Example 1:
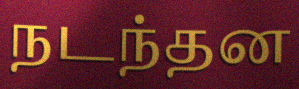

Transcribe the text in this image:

நடந்தன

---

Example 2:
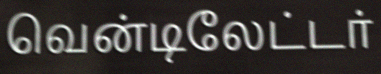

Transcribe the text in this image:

வென்டிலேட்டர்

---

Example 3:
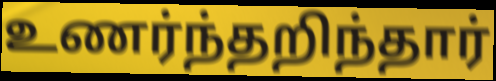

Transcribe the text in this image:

உணர்ந்தறிந்தார்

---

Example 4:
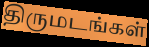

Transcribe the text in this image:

திருமடங்கள்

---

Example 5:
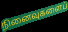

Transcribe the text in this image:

நினைவுகளைப்